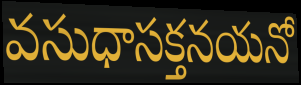
వసుధాసక్తనయనో